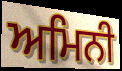
ਅਮਿਨੀ